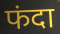
फंदा